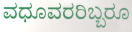
ವಧೂವರರಿಬ್ಬರೂ